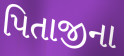
પિતાજીના